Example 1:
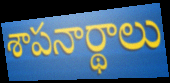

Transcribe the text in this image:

శాపనార్థాలు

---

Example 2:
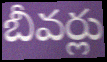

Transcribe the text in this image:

బీవర్లు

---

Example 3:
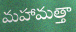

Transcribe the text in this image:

మహామత్తా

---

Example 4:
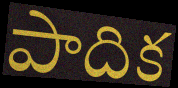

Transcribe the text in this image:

పాదిక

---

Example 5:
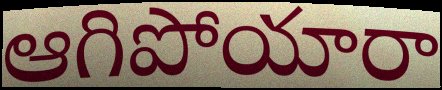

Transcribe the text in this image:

ఆగిపోయారా